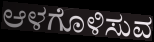
ಆಳಗೊಳಿಸುವ